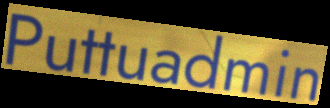
Puttuadmin